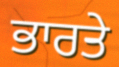
ਭਾਰਤੇ